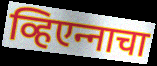
व्हिएन्नाचा